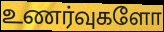
உணர்வுகளோ